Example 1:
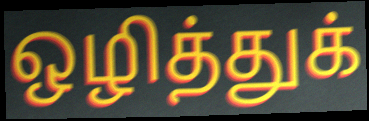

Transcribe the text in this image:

ஒழித்துக்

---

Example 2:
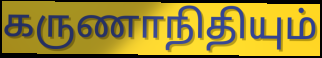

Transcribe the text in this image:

கருணாநிதியும்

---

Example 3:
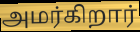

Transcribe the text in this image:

அமர்கிறார்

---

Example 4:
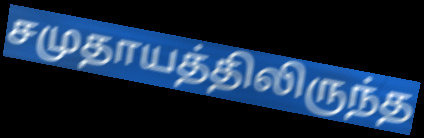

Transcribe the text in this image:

சமுதாயத்திலிருந்த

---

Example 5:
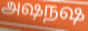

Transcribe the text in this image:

அஷநஷ